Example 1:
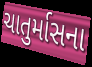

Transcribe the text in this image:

ચાતુર્માસના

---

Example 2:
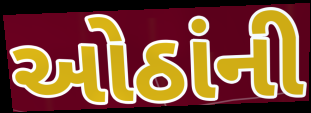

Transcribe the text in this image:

ઓઠાંની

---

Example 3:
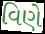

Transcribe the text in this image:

વિણે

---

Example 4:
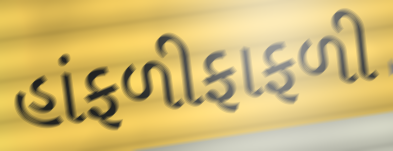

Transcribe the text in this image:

હાંફળીફાફળી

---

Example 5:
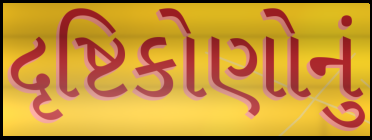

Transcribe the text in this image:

દૃષ્ટિકોણોનું